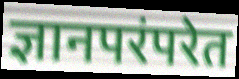
ज्ञानपरंपरेत